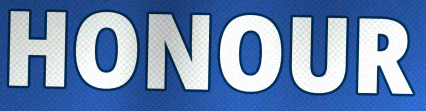
HONOUR